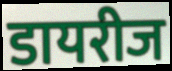
डायरीज